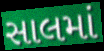
સાલમાં